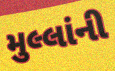
મુલ્લાંની